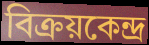
বিক্রয়কেন্দ্র